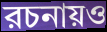
রচনায়ও